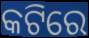
କଟିରେ